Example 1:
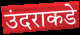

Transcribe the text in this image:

उंदराकडे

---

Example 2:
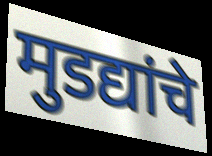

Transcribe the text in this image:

मुडद्यांचे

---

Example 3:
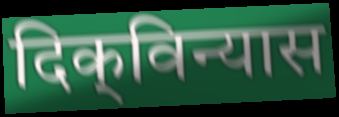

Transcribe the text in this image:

दिक्‌विन्यास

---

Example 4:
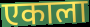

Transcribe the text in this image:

एकाला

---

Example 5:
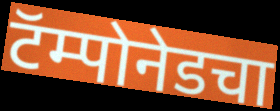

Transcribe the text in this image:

टॅम्पोनेडचा